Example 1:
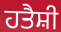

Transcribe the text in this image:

ਹਤੈਸ਼ੀ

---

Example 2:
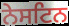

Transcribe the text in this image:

ਨੇਸਟਿਨ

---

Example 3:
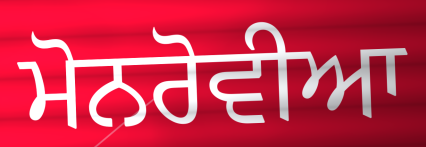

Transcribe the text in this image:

ਮੋਨਰੋਵੀਆ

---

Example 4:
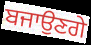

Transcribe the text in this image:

ਬਜਾਉਣਗੇ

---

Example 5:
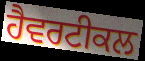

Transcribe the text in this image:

ਹੈਵਰਟੀਕਲ